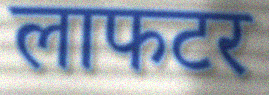
लाफटर